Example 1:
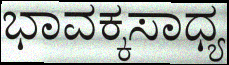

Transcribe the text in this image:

ಭಾವಕ್ಕಸಾಧ್ಯ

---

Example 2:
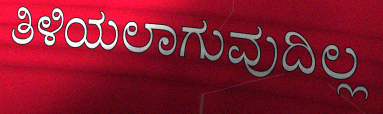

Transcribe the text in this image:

ತಿಳಿಯಲಾಗುವುದಿಲ್ಲ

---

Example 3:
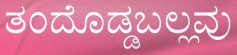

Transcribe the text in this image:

ತಂದೊಡ್ಡಬಲ್ಲವು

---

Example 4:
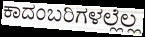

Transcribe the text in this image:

ಕಾದಂಬರಿಗಳಲ್ಲೆಲ್ಲ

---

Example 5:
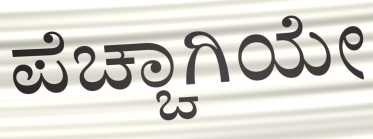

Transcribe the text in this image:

ಪೆಚ್ಚಾಗಿಯೇ